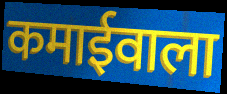
कमाईवाला